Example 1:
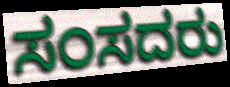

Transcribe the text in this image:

ಸಂಸದರು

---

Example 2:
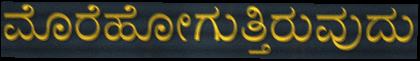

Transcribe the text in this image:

ಮೊರೆಹೋಗುತ್ತಿರುವುದು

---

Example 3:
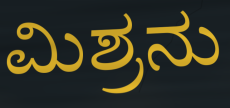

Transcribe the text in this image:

ಮಿಶ್ರನು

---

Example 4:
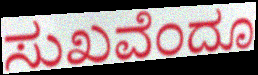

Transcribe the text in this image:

ಸುಖವೆಂದೂ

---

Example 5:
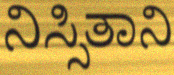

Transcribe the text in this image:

ನಿಸ್ಸಿತಾನಿ